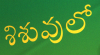
శిశువులో